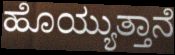
ಹೊಯ್ಯುತ್ತಾನೆ